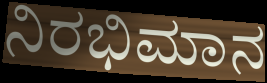
ನಿರಭಿಮಾನ